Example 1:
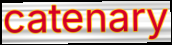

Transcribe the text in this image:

catenary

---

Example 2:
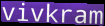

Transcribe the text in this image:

vivkram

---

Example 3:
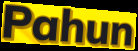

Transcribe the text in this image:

Pahun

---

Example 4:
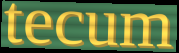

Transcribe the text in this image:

tecum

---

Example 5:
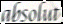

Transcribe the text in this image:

absolut